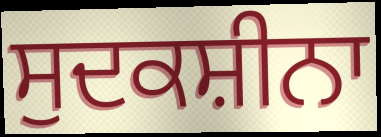
ਸੁਦਕਸ਼ੀਨਾ